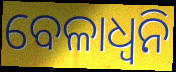
ବେଳାଧ୍ୱନି